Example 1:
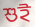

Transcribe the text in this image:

শুই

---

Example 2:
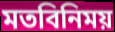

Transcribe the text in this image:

মতবিনিময়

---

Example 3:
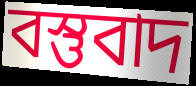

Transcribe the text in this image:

বস্তুবাদ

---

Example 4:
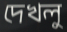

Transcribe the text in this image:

দেখলু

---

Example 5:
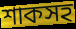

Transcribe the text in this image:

শাকসহ